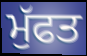
ਮੁੱਫਤ